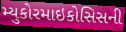
મ્યુકોરમાઇકોસિસની